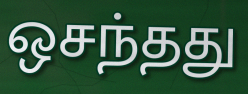
ஒசந்தது